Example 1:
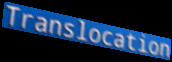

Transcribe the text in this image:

Translocation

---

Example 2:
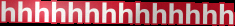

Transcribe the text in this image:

hhhhhhhhhhhhhh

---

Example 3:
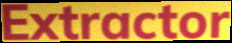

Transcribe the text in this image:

Extractor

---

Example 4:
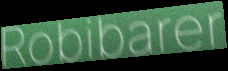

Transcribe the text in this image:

Robibarer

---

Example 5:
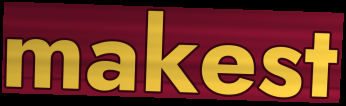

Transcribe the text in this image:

makest